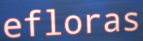
efloras